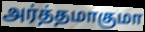
அர்த்தமாகுமா